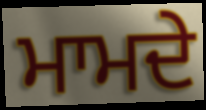
ਮਾਮਦੇ